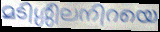
മടിശ്ശീലനിറയെ